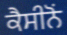
ਕੈਸੀਨੋਂ